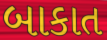
બાકાત